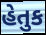
હેતુક